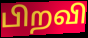
பிறவி